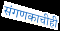
संगणकाचीही